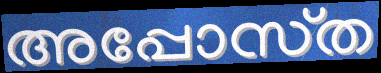
അപ്പോസ്‌ത